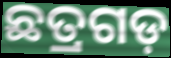
ଛତ୍ରଗଡ଼